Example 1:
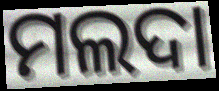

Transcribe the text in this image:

ମଲଦା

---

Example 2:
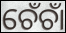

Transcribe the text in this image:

ଚେଁଚାଁ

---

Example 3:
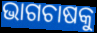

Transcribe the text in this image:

ଭାଗଚାଷକୁ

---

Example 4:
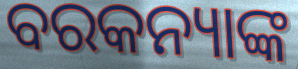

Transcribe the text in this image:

ବରକନ୍ୟାଙ୍କ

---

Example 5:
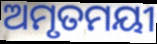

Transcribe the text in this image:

ଅମୃତମୟୀ